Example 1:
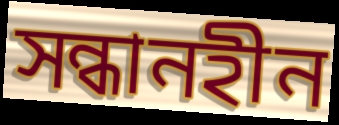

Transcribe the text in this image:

সন্ধানহীন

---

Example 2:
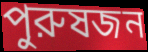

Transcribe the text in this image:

পুৰুষজন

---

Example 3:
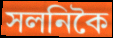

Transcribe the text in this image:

সলনিকৈ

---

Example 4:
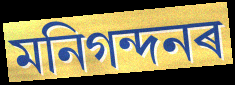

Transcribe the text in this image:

মনিগন্দনৰ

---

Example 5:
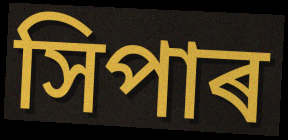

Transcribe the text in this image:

সিপাৰ